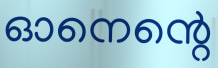
ഓനെന്റെ